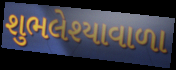
શુભલેશ્યાવાળા